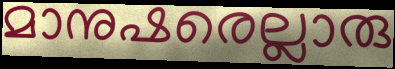
മാനുഷരെല്ലാരു